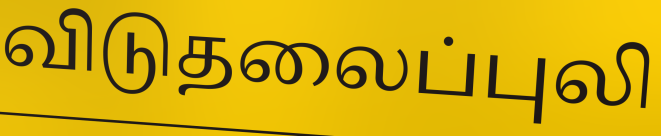
விடுதலைப்புலி